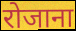
रोजाना